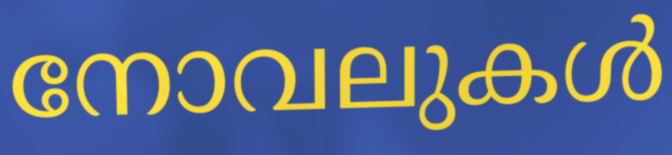
നോവലുകൾ